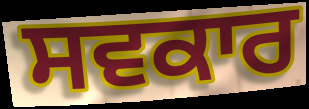
ਸਵਕਾਰ